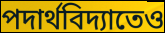
পদার্থবিদ্যাতেও